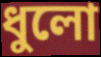
ধুলো